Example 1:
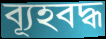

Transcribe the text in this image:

ব্যূহবদ্ধ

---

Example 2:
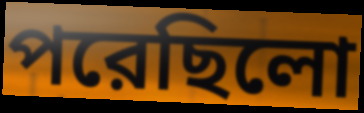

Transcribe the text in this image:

পরেছিলো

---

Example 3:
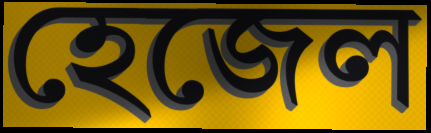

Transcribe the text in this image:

হেজেল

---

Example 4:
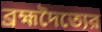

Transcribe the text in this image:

ব্রহ্মদৈত্যের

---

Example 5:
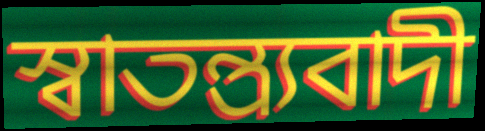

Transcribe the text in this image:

স্বাতন্ত্র্যবাদী